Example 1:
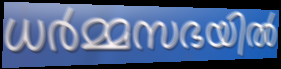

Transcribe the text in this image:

ധർമ്മസഭയിൽ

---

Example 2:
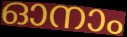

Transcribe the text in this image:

ഓനാം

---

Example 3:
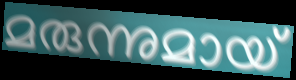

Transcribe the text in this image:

മരുന്നുമായ്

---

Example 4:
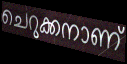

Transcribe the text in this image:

ചെറുക്കനാണ്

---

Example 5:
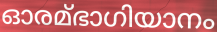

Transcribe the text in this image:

ഓരമ്ഭാഗിയാനം